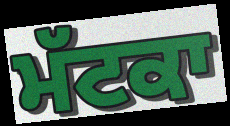
ਮੱਟਕਾ